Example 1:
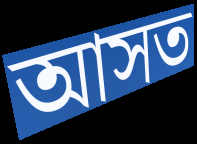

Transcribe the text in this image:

আসত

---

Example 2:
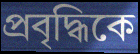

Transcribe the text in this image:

প্রবৃদ্ধিকে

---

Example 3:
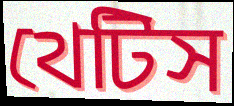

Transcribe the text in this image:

থেটিস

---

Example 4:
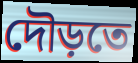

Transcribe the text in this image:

দৌড়তে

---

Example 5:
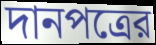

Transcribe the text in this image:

দানপত্রের